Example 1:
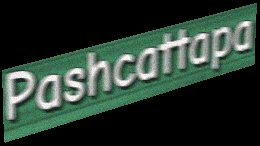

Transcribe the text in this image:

Pashcattapa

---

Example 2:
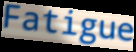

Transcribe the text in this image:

Fatigue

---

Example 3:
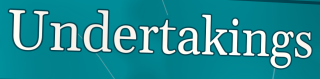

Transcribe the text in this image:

Undertakings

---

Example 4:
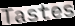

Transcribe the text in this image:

Tastes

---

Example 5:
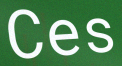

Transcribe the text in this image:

Ces